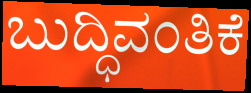
ಬುದ್ಧಿವಂತಿಕೆ